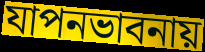
যাপনভাবনায়